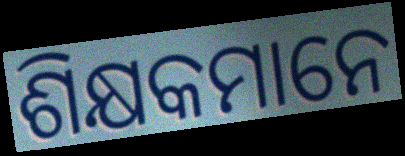
ଶିକ୍ଷକମାନେ